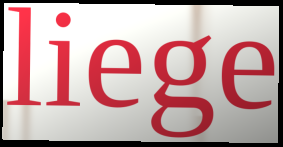
liege